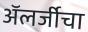
ॲलर्जीचा